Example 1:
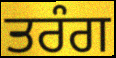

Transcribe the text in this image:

ਤਰੰਗ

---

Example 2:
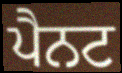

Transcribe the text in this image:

ਪੈਨਟ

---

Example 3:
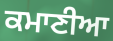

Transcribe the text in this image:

ਕਮਾਣੀਆ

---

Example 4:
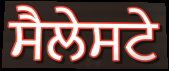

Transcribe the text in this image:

ਸੈਲੇਸਟੇ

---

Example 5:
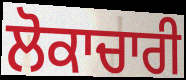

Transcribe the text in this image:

ਲੋਕਾਚਾਰੀ